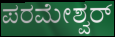
ಪರಮೇಶ್ವರ್